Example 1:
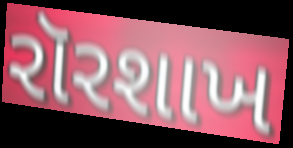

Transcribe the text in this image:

રૉરશાખ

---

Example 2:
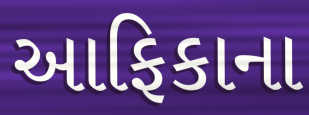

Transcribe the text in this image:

આફિકાના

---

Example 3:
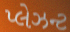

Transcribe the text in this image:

પ્લેઝન્ટ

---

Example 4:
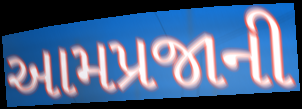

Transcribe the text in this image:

આમપ્રજાની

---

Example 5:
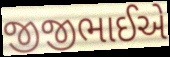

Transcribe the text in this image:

જીજીભાઈએ